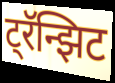
ट्रॅन्झिट